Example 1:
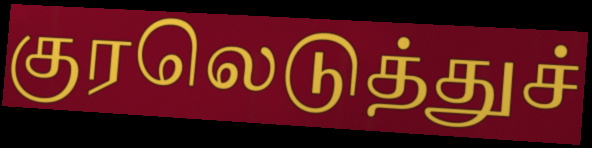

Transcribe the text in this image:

குரலெடுத்துச்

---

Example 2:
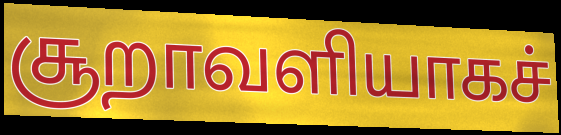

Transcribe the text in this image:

சூறாவளியாகச்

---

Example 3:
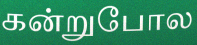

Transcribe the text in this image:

கன்றுபோல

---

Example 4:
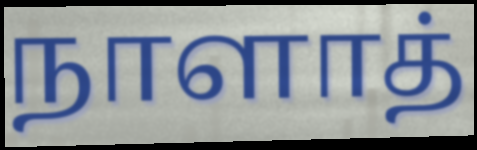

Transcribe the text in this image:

நாளாத்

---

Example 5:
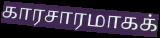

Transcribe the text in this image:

காரசாரமாகக்